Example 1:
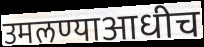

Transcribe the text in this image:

उमलण्याआधीच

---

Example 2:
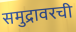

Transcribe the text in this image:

समुद्रावरची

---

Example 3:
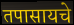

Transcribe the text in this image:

तपासायचे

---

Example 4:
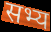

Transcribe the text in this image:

सभ्य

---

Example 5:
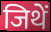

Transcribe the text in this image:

जिथें